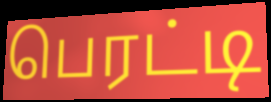
பெரட்டி